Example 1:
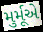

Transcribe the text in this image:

મુર્મૂએ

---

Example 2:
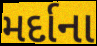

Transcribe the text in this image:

મર્દાના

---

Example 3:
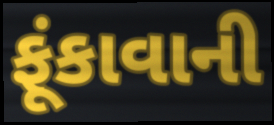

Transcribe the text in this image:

ફૂંકાવાની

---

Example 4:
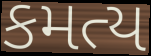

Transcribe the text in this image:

કમત્ય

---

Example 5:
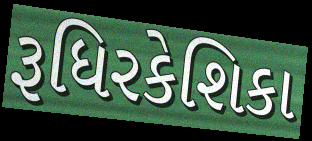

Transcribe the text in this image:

રૂધિરકેશિકા